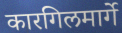
कारगिलमार्गे